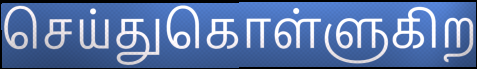
செய்துகொள்ளுகிற